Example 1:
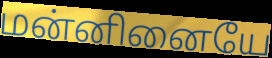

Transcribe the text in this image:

மன்னினையே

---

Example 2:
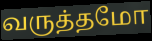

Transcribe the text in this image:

வருத்தமோ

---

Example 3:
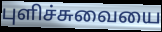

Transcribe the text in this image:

புளிச்சுவையை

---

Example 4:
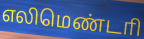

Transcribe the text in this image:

எலிமெண்டரி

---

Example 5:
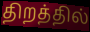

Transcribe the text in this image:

திறத்தில்